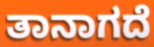
ತಾನಾಗದೆ